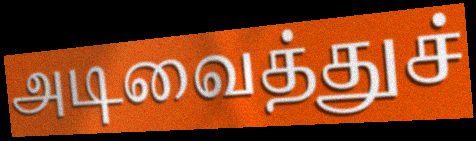
அடிவைத்துச்